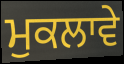
ਮੁਕਲਾਵੇ